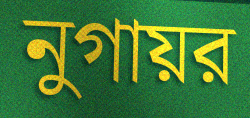
নুগায়র